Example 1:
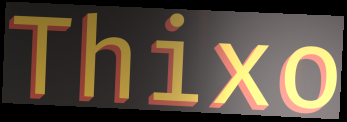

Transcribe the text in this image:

Thixo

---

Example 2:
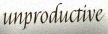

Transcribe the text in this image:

unproductive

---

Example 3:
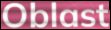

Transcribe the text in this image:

Oblast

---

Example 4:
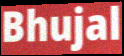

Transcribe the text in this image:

Bhujal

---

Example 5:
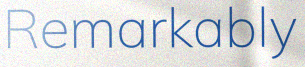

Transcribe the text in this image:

Remarkably